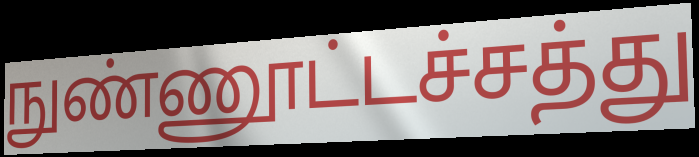
நுண்ணூட்டச்சத்து